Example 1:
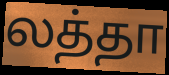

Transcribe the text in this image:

லத்தா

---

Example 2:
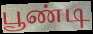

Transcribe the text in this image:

பூண்டி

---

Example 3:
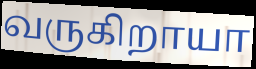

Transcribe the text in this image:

வருகிறாயா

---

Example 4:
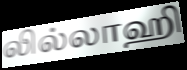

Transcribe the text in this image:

லில்லாஹி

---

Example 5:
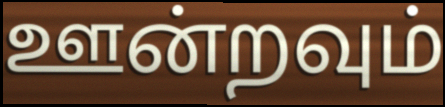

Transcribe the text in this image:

ஊன்றவும்